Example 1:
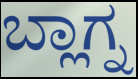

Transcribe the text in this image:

ಬ್ಲಾಗ್ನ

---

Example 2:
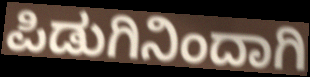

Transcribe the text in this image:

ಪಿಡುಗಿನಿಂದಾಗಿ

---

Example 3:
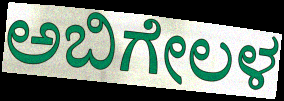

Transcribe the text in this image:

ಅಬಿಗೇಲಳ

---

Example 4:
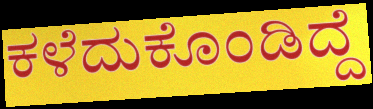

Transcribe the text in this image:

ಕಳೆದುಕೊಂಡಿದ್ದೆ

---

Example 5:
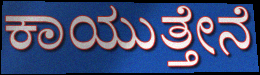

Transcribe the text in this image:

ಕಾಯುತ್ತೇನೆ